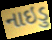
નાઇડુ